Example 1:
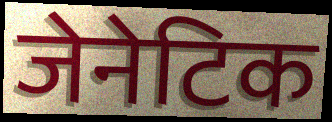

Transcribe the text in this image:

जेनेटिक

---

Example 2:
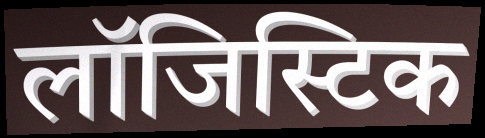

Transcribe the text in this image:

लॉजिस्टिक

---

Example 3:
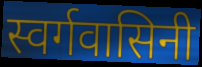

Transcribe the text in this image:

स्वर्गवासिनी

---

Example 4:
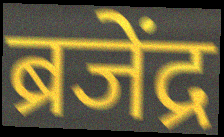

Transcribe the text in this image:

ब्रजेंद्र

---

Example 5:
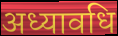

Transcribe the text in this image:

अध्यावधि